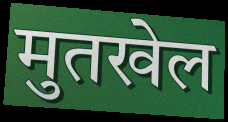
मुतखेल